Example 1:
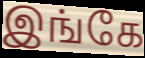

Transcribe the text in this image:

இங்கே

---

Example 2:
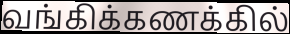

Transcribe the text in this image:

வங்கிக்கணக்கில்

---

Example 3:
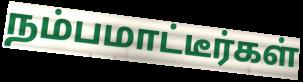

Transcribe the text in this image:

நம்பமாட்டீர்கள்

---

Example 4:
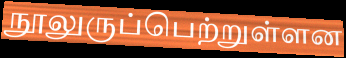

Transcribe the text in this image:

நூலுருப்பெற்றுள்ளன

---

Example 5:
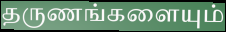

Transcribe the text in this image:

தருணங்களையும்